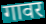
गावर